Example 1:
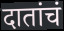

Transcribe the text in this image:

दातांचं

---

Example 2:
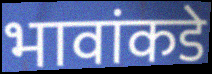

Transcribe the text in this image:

भावांकडे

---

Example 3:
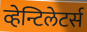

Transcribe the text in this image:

व्हेन्टिलेटर्स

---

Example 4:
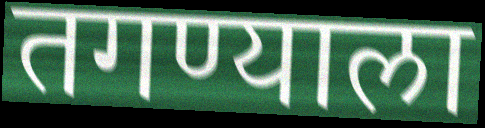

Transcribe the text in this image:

तगण्याला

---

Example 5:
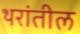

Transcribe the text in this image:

थरांतील